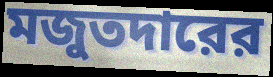
মজুতদারের